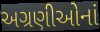
અગ્રણીઓનાં